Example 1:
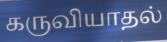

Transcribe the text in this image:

கருவியாதல்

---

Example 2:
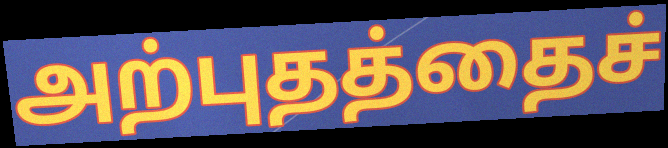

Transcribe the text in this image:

அற்புதத்தைச்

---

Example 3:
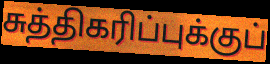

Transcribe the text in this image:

சுத்திகரிப்புக்குப்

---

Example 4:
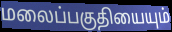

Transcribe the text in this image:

மலைப்பகுதியையும்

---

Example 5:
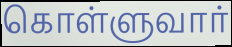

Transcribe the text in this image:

கொள்ளுவார்